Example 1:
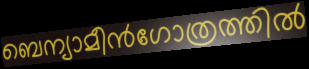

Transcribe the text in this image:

ബെന്യാമീൻഗോത്രത്തിൽ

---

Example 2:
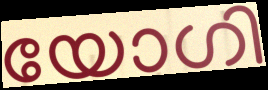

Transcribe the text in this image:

യോഗി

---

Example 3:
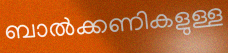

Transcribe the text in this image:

ബാൽക്കണികളുള്ള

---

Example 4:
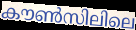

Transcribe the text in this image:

കൗൺസിലിലെ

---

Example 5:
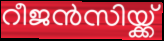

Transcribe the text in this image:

റീജൻസിയ്ക്ക്